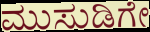
ಮುಸುಡಿಗೇ